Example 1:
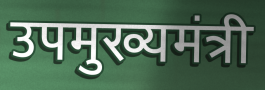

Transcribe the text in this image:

उपमुख्यमंत्री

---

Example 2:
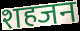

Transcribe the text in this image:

शहजन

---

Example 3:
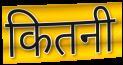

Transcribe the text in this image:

कितनी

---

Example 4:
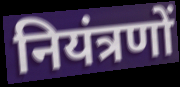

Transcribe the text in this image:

नियंत्रणों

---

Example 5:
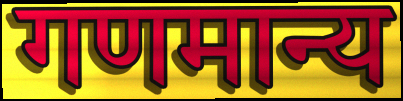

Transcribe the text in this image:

गणमान्य